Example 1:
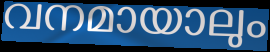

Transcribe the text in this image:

വനമായാലും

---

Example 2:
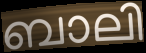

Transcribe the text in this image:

ബാലി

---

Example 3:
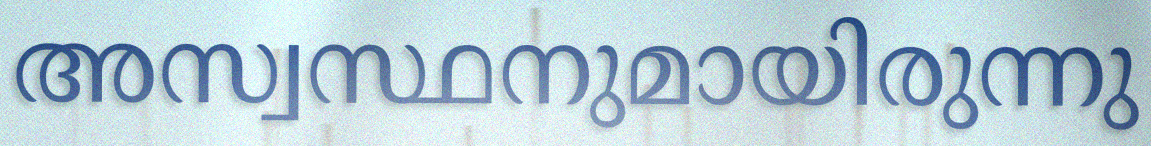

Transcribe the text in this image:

അസ്വസ്ഥനുമായിരുന്നു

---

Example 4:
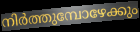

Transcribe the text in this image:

നിർത്തുമ്പോഴേക്കും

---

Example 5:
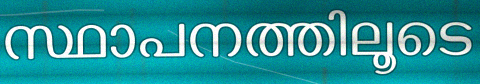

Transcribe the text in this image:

സ്ഥാപനത്തിലൂടെ